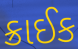
ક્રાઈક